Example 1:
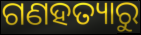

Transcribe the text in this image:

ଗଣହତ୍ୟାରୁ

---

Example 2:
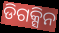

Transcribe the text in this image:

ଡିଗକ୍ସିନ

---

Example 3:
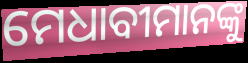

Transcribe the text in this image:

ମେଧାବୀମାନଙ୍କୁ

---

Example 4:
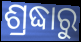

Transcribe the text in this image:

ଶ୍ରଦ୍ଧାରୁ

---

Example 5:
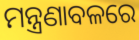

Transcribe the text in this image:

ମନ୍ତ୍ରଣାବଳରେ